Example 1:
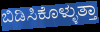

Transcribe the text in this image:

ಬಿಡಿಸಿಕೊಳ್ಳುತ್ತಾ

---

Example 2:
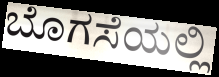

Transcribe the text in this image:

ಬೊಗಸೆಯಲ್ಲಿ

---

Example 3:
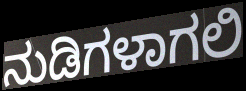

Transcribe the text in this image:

ನುಡಿಗಳಾಗಲಿ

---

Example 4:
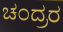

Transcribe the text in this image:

ಚಂದ್ರರ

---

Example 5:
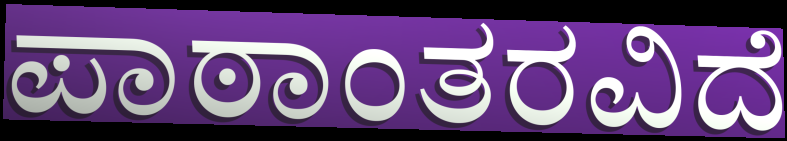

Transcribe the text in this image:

ಪಾಠಾಂತರವಿದೆ